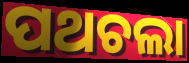
ପଥଚଲା